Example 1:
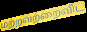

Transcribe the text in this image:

மற்றவற்றைவிட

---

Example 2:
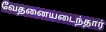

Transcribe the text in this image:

வேதனையடைந்தார்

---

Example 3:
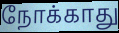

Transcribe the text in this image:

நோக்காது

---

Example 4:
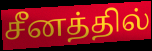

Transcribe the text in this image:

சீனத்தில்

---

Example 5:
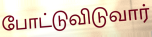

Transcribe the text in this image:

போட்டுவிடுவார்